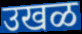
उखळ